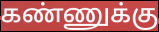
கண்ணுக்கு